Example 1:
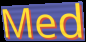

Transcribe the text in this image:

Med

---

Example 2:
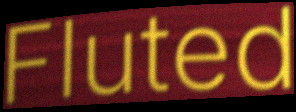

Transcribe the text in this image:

Fluted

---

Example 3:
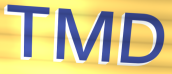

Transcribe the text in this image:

TMD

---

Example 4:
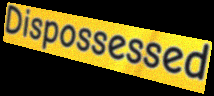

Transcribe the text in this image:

Dispossessed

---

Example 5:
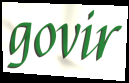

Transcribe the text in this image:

govir